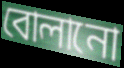
বোলানো